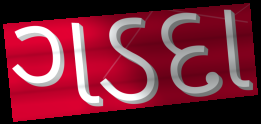
ગડદા